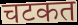
चटकत